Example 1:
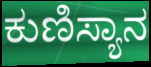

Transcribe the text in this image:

ಕುಣಿಸ್ಯಾನ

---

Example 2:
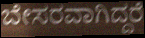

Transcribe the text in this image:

ಬೇಸರವಾಗಿದ್ದರೆ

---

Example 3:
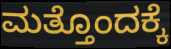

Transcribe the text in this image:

ಮತ್ತೊಂದಕ್ಕೆ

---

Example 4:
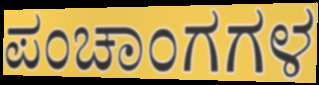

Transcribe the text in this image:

ಪಂಚಾಂಗಗಳ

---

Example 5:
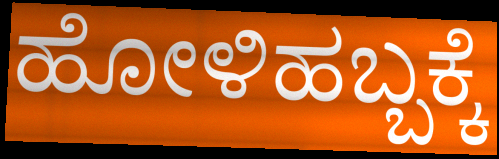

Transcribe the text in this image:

ಹೋಳಿಹಬ್ಬಕ್ಕೆ